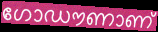
ഗോഡൗണാണ്